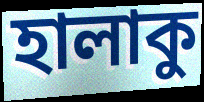
হালাকু